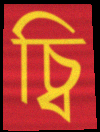
চ্বি